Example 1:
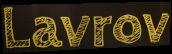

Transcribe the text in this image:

Lavrov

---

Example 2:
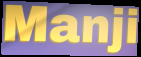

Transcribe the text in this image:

Manji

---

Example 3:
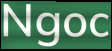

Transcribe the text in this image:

Ngoc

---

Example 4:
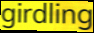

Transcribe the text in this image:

girdling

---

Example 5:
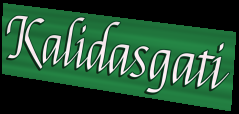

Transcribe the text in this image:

Kalidasgati